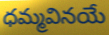
ధమ్మవినయే